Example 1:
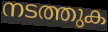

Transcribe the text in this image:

നടത്തുക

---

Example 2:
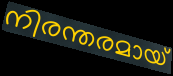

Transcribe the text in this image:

നിരന്തരമായ്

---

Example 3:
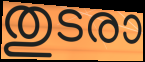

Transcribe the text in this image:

തുടരാ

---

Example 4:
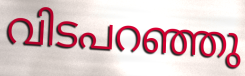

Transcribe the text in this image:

വിടപറഞ്ഞു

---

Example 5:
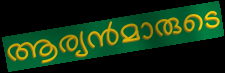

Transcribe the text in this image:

ആര്യൻമാരുടെ